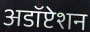
अडॉप्टेशन